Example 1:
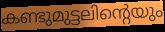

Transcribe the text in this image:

കണ്ടുമുട്ടലിന്റെയും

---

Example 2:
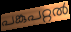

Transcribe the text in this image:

പങ്കുപറ്റൽ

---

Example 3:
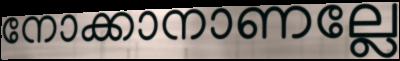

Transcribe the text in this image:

നോക്കാനാണല്ലേ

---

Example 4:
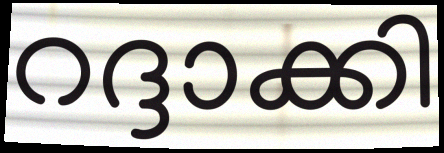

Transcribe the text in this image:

റദ്ദാക്കി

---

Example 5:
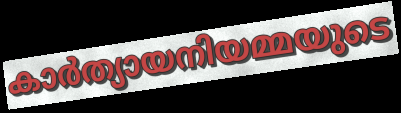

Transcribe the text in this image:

കാർത്യായനിയമ്മയുടെ